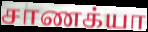
சாணக்யா